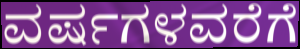
ವರ್ಷಗಳವರೆಗೆ